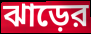
ঝাড়ের